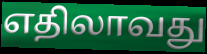
எதிலாவது